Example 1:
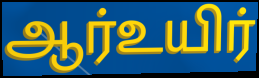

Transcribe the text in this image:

ஆர்உயிர்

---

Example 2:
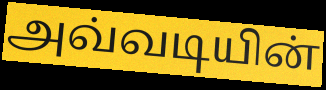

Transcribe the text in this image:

அவ்வடியின்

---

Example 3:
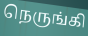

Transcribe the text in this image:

நெருங்கி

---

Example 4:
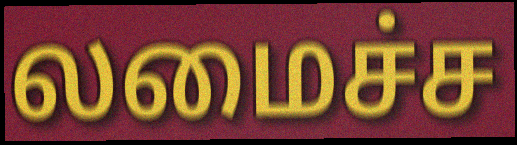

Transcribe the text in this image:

லமைச்ச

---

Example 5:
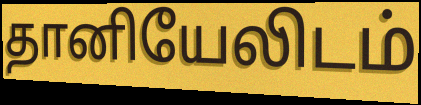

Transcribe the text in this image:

தானியேலிடம்